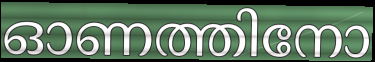
ഓണത്തിനോ